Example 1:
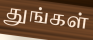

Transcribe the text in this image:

துங்கள்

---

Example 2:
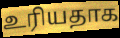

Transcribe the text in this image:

உரியதாக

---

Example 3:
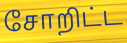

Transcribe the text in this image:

சோறிட்ட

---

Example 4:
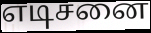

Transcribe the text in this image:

எடிசனை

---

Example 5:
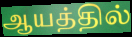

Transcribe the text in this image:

ஆயத்தில்